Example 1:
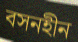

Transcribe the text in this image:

বসনহীন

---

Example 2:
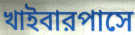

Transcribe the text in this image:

খাইবারপাসে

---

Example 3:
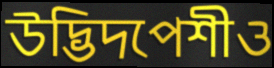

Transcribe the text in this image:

উদ্ভিদপেশীও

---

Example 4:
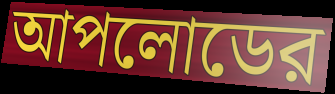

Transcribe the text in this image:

আপলোডের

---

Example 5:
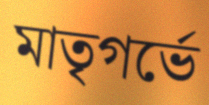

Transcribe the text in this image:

মাতৃগর্ভে